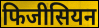
फिजीसियन